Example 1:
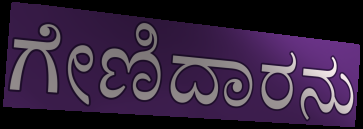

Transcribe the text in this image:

ಗೇಣಿದಾರನು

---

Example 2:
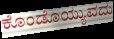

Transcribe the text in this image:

ಕೊಂಡೊಯ್ಯುವದು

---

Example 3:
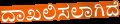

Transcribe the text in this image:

ದಾಖಲಿಸಲಾಗಿದೆ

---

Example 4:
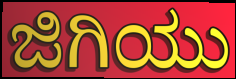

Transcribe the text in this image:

ಜಿಗಿಯು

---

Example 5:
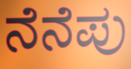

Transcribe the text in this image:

ನೆನೆಪು